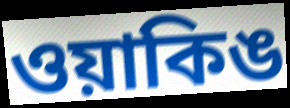
ওয়াকিঙ